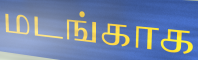
மடங்காக